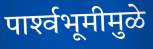
पार्श्‍वभूमीमुळे